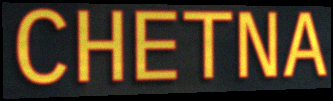
CHETNA